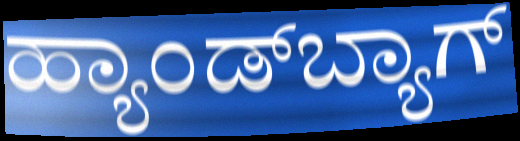
ಹ್ಯಾಂಡ್‌ಬ್ಯಾಗ್